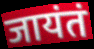
जायंतं